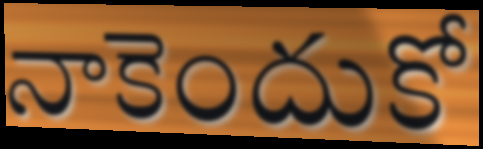
నాకెందుకో